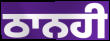
ਠਾਨਹੀ